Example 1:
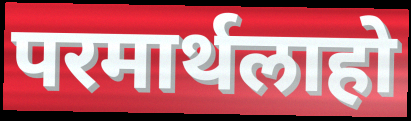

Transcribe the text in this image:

परमार्थलाहो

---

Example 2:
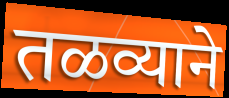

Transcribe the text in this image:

तळव्याने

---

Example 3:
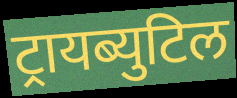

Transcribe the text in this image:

ट्रायब्युटिल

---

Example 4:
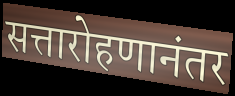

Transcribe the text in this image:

सत्तारोहणानंतर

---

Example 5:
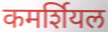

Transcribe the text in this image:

कमर्शियल